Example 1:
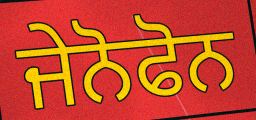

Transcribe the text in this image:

ਜੇਨੋਫੋਨ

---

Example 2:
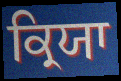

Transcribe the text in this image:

ਕ੍ਰਿਯਾ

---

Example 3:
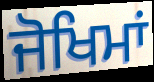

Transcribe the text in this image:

ਜੋਖਿਮਾਂ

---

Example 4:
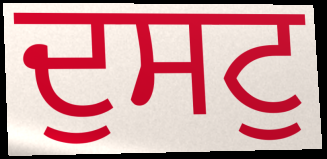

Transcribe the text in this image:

ਦੁਸਟੁ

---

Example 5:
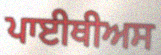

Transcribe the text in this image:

ਪਾਈਥੀਅਸ